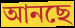
আনছে